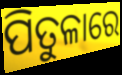
ପିତୁଳାରେ